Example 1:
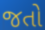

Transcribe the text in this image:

જતો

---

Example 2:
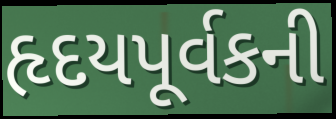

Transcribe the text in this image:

હૃદયપૂર્વકની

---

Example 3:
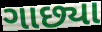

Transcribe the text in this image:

ગાછ્યા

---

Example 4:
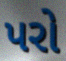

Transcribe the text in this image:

પરો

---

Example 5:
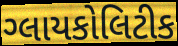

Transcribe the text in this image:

ગ્લાયકોલિટીક